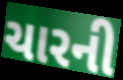
ચારની